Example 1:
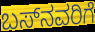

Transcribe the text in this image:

ಬಸ್‌ನವರಿಗೆ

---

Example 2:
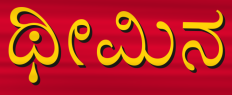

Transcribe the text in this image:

ಥೀಮಿನ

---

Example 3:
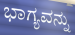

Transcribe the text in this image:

ಭಾಗ್ಯವನ್ನು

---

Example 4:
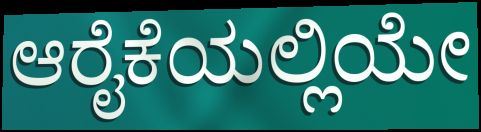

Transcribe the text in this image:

ಆರೈಕೆಯಲ್ಲಿಯೇ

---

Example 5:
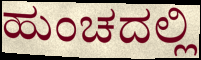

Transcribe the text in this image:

ಹುಂಚದಲ್ಲಿ